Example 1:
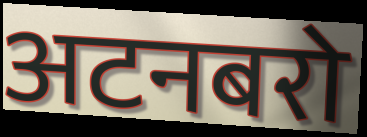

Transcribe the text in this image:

अटनबरो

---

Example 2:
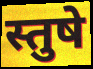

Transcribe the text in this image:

स्तुषे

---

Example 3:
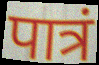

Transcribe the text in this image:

पात्रं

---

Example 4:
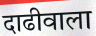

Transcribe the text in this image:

दाढीवाला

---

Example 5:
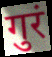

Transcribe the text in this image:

गुरं